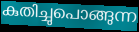
കുതിച്ചുപൊങ്ങുന്ന